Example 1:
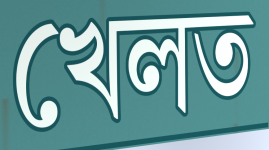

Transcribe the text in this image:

খেলত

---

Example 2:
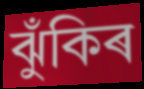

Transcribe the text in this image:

ঝুঁকিৰ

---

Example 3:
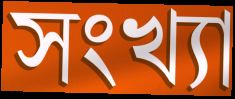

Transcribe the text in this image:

সংখ্যা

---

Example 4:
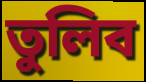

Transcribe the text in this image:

তুলিব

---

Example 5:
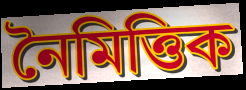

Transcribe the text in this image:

নৈমিত্তিক